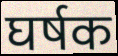
घर्षक